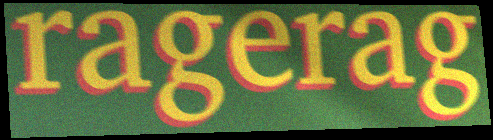
ragerag